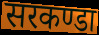
सरकण्डा